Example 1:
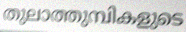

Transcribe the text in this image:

തുലാത്തുമ്പികളുടെ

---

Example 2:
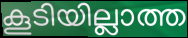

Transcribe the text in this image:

കൂടിയില്ലാത്ത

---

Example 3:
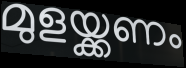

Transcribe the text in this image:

മുളയ്ക്കണം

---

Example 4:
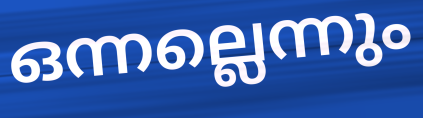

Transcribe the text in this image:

ഒന്നല്ലെന്നും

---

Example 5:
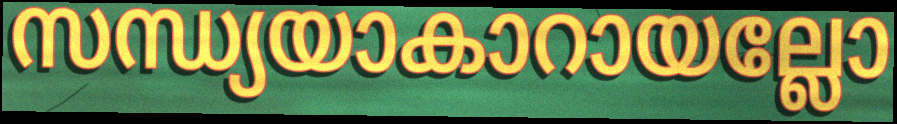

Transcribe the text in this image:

സന്ധ്യയാകാറായല്ലോ